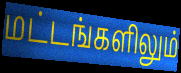
மட்டங்களிலும்